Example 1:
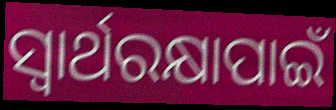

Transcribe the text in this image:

ସ୍ୱାର୍ଥରକ୍ଷାପାଇଁ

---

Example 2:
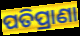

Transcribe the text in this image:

ପତିପ୍ରାଣା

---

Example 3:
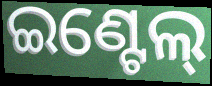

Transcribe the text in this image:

ଇଣ୍ଟେଲ୍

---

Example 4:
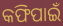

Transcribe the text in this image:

କଫିପାଇଁ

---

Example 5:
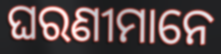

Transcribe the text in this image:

ଘରଣୀମାନେ